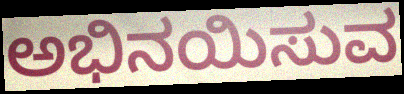
ಅಭಿನಯಿಸುವ